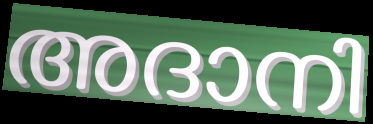
അദാനി